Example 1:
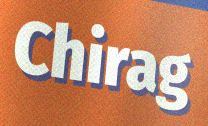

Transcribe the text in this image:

Chirag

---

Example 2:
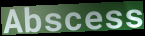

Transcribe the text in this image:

Abscess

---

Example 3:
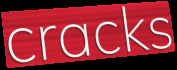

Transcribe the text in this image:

cracks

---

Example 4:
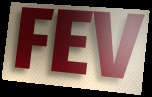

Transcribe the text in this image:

FEV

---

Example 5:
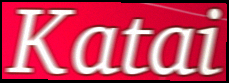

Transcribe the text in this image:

Katai